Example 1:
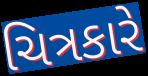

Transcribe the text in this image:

ચિત્રકારે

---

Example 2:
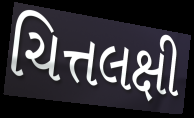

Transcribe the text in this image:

ચિત્તલક્ષી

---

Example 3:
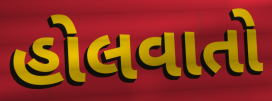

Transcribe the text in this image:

હોલવાતો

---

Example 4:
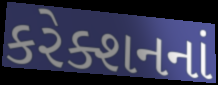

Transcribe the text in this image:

કરેક્શનનાં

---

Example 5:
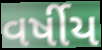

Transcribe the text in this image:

વર્ષીય